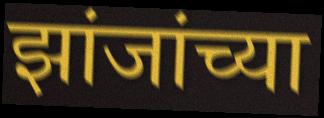
झांजांच्या